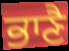
ਭਾਣੈ